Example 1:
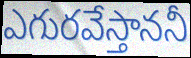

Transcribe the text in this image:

ఎగురవేస్తాననీ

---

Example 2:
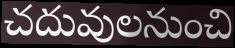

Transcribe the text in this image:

చదువులనుంచి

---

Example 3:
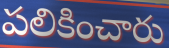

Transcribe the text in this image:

పలికించారు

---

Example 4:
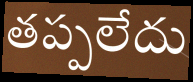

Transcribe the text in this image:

తప్పలేదు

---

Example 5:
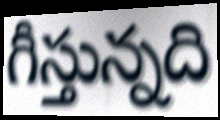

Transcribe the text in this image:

గీస్తున్నది